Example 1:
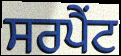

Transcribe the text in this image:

ਸਰਪੈਂਟ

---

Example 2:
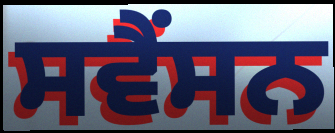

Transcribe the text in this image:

ਸਵੈਂਸਨ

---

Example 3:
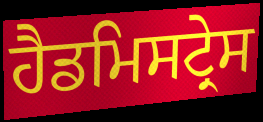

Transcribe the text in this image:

ਹੈਡਮਿਸਟ੍ਰੇਸ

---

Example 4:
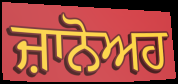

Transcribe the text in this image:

ਜ਼ਾਨੋਅਹ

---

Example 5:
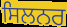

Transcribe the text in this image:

ਸਿਲਨਰ